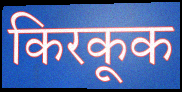
किरकूक